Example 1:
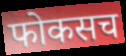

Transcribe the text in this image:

फोकसच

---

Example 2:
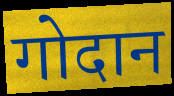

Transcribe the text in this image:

गोदान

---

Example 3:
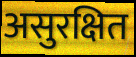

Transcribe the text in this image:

असुरक्षित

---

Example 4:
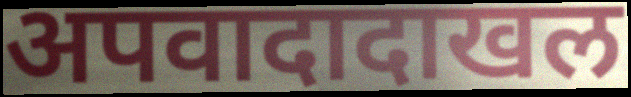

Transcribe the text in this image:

अपवादादाखल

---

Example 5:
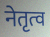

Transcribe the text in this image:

नेतृत्‍व